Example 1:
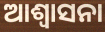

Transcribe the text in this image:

ଆଶ୍ଵାସନା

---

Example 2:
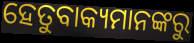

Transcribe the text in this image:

ହେତୁବାକ୍ୟମାନଙ୍କରୁ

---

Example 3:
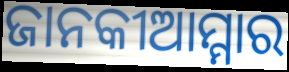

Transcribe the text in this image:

ଜାନକୀଆମ୍ମାର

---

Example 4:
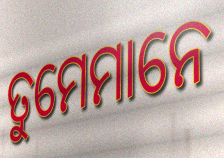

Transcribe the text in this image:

ତୁମେମାନେ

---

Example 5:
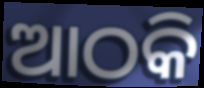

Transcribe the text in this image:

ଆଠକି